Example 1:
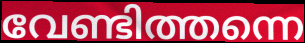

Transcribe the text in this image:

വേണ്ടിത്തന്നെ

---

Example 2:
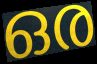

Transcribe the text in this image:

ഒര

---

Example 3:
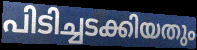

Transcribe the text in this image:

പിടിച്ചടക്കിയതും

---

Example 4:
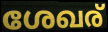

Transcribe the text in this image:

ശേഖര്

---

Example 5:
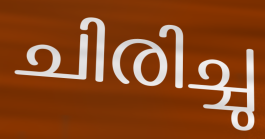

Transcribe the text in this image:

ചിരിച്ചു